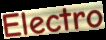
Electro